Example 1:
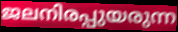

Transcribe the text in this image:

ജലനിരപ്പുയരുന്ന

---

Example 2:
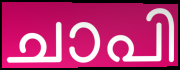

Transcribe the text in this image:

ചാപി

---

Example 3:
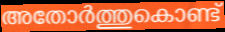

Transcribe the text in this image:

അതോർത്തുകൊണ്ട്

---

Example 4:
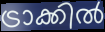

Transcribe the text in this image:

ട്രാക്കിൽ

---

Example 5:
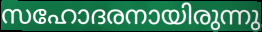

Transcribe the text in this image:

സഹോദരനായിരുന്നു